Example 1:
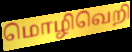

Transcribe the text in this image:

மொழிவெறி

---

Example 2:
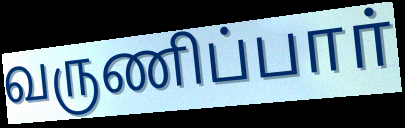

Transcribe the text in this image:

வருணிப்பார்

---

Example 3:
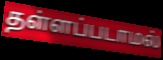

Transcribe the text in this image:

தள்ளப்படாமல்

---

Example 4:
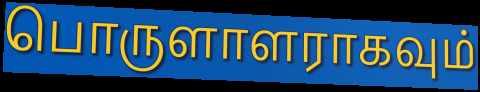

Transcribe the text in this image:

பொருளாளராகவும்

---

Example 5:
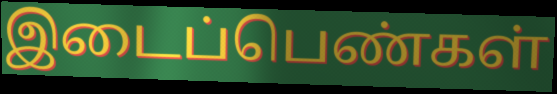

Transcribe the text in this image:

இடைப்பெண்கள்